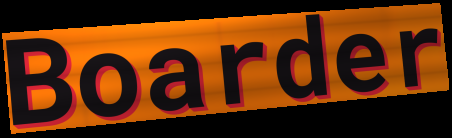
Boarder